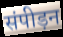
संपीड़न